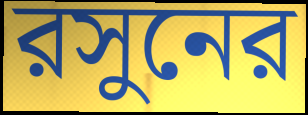
রসুনের